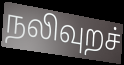
நலிவுறச்